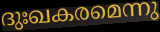
ദുഃഖകരമെന്നു